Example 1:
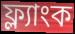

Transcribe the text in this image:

ফ্ল্যাংক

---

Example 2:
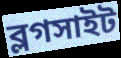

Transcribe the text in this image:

ব্লগসাইট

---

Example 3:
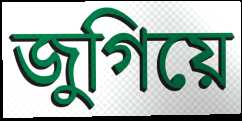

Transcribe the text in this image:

জুগিয়ে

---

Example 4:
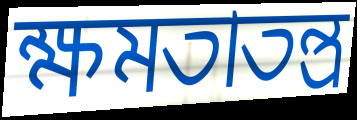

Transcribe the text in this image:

ক্ষমতাতন্ত্র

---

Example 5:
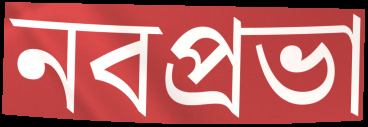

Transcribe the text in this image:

নবপ্রভা